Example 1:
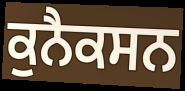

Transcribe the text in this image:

ਕੁਨੈਕਸਨ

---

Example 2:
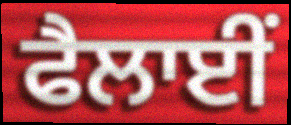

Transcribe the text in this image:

ਫੈਲਾਈਂ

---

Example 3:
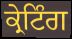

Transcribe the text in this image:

ਕ੍ਰੇਟਿੰਗ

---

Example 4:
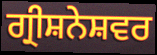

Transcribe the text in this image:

ਗ੍ਰੀਸ਼ਨੇਸ਼ਵਰ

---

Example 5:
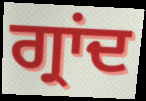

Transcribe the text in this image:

ਗ੍ਰਾਂਦ